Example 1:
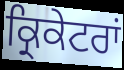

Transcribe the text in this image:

ਕ੍ਰਿਕੇਟਰਾਂ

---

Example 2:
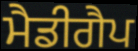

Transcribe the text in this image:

ਮੈਡੀਗੈਪ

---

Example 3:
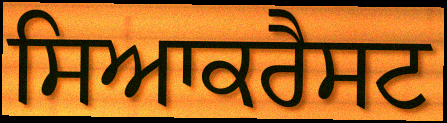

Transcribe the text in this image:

ਸਿਆਕਰੈਸਟ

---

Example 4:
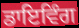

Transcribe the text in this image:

ਡਾਇਵਿੰਗ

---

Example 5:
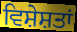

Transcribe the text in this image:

ਵਿਸ਼ੇਸ਼ਤਾਂ